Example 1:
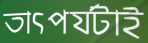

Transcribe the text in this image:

তাৎপর্যটাই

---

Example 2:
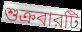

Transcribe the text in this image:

শুক্রবারটি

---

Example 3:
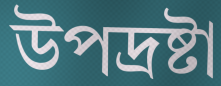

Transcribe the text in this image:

উপদ্রষ্টা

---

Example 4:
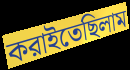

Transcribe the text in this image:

করাইতেছিলাম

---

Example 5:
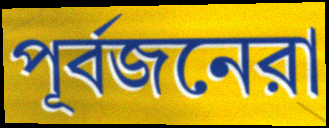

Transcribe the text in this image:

পূর্বজনেরা